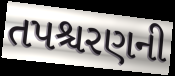
તપશ્ચરણની